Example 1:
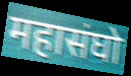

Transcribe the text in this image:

महासंघो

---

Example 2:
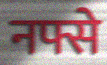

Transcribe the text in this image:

नफ्से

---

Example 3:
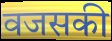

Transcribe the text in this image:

वजसकी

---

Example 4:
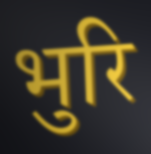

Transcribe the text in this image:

भुरि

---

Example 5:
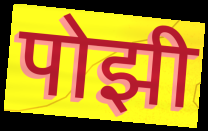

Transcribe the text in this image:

पोझी